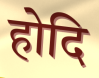
होदि